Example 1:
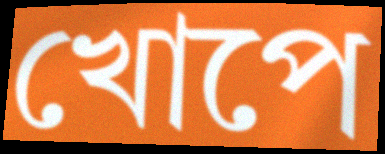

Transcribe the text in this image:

খোপে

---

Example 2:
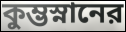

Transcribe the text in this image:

কুম্ভস্নানের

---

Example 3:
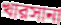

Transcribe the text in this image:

খারসানা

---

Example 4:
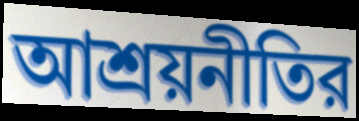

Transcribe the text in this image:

আশ্রয়নীতির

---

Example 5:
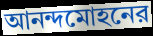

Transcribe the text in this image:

আনন্দমোহনের